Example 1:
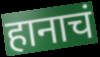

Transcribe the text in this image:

हानाचं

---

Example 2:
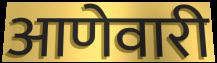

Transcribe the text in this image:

आणेवारी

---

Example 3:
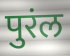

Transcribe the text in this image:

पुरंल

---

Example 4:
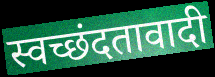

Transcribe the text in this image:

स्वच्छंदतावादी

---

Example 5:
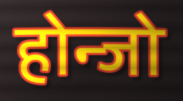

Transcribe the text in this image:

होन्जो